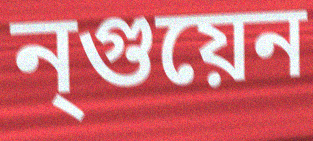
ন্গুয়েন